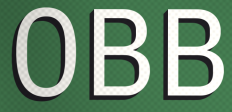
OBB